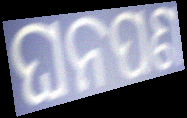
ଘନପଣ